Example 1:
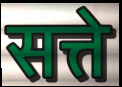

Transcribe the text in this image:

सत्ते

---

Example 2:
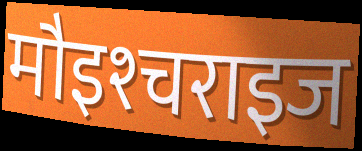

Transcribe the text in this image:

मौइश्चराइज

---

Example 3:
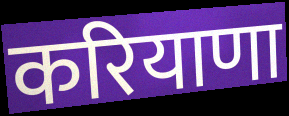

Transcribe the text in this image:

करियाणा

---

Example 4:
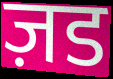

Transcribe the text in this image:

ज़ड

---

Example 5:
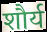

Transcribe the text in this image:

शौर्य